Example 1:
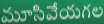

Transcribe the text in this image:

మూసివేయగల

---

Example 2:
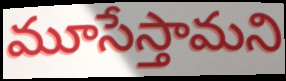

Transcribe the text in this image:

మూసేస్తామని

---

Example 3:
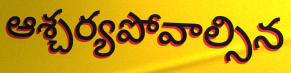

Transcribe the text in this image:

ఆశ్చర్యపోవాల్సిన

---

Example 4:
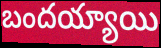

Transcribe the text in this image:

బందయ్యాయి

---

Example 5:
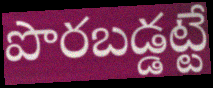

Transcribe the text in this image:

పొరబడ్డట్టే